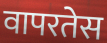
वापरतेस